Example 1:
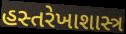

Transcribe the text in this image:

હસ્તરેખાશાસ્ત્ર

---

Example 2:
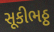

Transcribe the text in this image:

સૂકીભઠ્ઠ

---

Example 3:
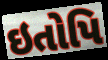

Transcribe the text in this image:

ઇતોપિ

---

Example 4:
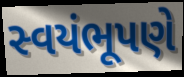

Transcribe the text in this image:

સ્વયંભૂપણે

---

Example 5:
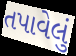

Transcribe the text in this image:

તપાવેલું